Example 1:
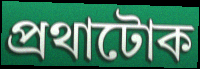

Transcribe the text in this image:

প্ৰথাটোক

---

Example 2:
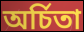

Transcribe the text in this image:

অৰ্চিতা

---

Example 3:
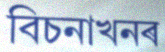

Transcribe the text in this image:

বিচনাখনৰ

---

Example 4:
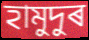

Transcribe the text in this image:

হামুদুৰ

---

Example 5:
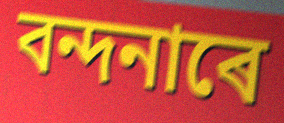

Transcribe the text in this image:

বন্দনাৰে